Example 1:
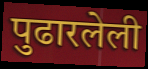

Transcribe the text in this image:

पुढारलेली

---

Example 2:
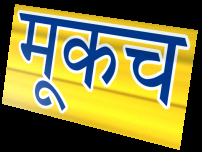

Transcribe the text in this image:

मूकच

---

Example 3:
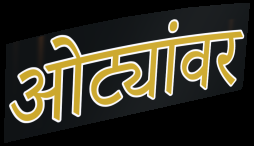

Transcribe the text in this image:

ओट्यांवर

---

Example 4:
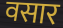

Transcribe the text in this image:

वसार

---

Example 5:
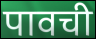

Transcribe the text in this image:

पावची